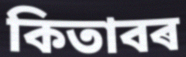
কিতাবৰ